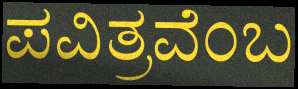
ಪವಿತ್ರವೆಂಬ